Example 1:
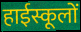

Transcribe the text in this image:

हाईस्कूलों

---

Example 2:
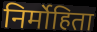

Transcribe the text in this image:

निर्मोहिता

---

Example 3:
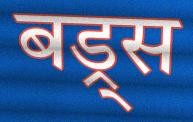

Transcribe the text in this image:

बड्र्स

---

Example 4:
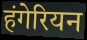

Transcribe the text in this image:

हंगेरियन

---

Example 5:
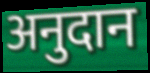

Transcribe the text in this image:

अनुदान